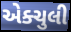
એક્ચુલી